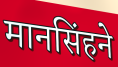
मानसिंहने